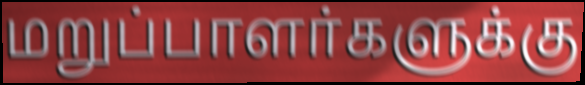
மறுப்பாளர்களுக்கு